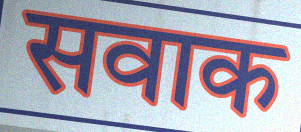
सवाक